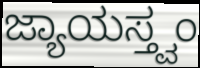
ಜ್ಯಾಯಸ್ತ್ವಂ